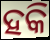
ହକି